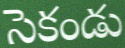
సెకండు